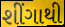
શીંગાથી